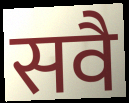
सवै